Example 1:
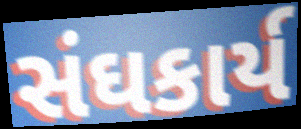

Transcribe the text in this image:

સંઘકાર્ય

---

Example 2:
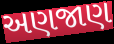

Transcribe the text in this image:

અણજાણ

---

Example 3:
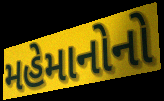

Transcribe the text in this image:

મહેમાનોનો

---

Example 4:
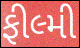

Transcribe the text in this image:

ફીલ્મી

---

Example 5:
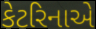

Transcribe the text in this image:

કેટરિનાએ